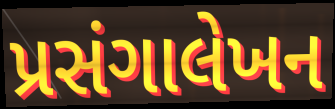
પ્રસંગાલેખન